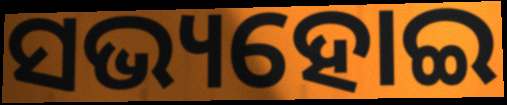
ସଭ୍ୟହୋଇ